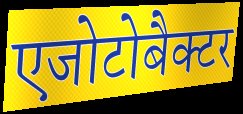
एजोटोबैक्टर